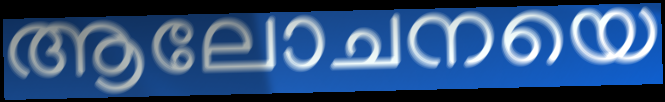
ആലോചനയെ